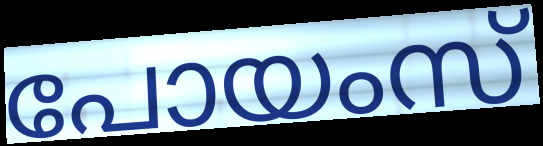
പോയംസ്